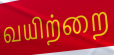
வயிற்றை